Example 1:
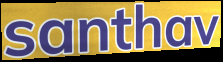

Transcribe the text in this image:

santhav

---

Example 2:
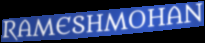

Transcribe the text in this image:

RAMESHMOHAN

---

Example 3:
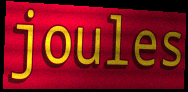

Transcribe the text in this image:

joules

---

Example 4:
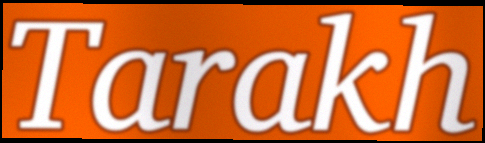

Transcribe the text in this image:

Tarakh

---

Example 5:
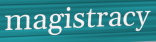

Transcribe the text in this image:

magistracy